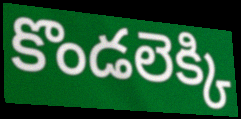
కొండలెక్కి